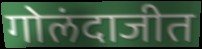
गोलंदाजीत